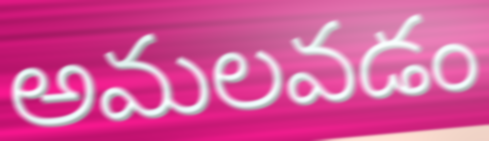
అమలవడం